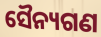
ସୈନ୍ୟଗଣ